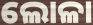
ଲୋଳା